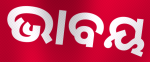
ଭାବୟ